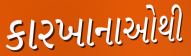
કારખાનાઓથી